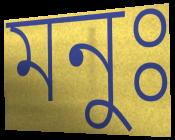
মনুঃ